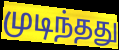
முடிந்தது